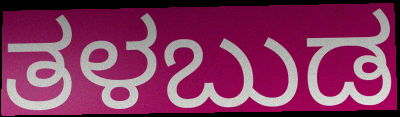
ತಳಬುಡ